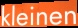
kleinen